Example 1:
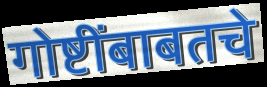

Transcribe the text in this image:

गोष्टींबाबतचे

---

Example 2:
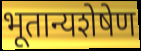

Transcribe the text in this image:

भूतान्यशेषेण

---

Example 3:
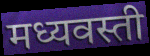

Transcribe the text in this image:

मध्यवस्ती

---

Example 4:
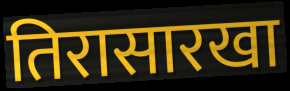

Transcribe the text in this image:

तिरासारखा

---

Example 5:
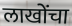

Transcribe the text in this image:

लाखोंचा